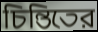
চিন্তিতের